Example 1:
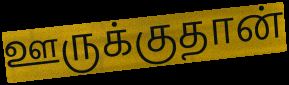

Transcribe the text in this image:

ஊருக்குதான்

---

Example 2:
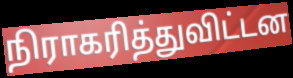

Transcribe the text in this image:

நிராகரித்துவிட்டன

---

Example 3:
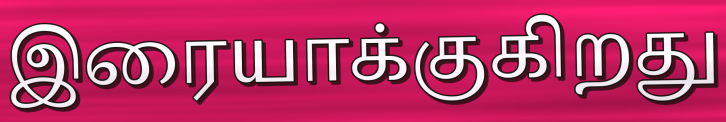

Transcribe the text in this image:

இரையாக்குகிறது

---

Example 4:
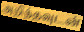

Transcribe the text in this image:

அறிந்தவுடன்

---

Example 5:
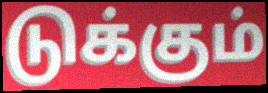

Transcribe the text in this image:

டுக்கும்